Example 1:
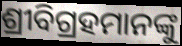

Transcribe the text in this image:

ଶ୍ରୀବିଗ୍ରହମାନଙ୍କୁ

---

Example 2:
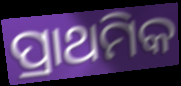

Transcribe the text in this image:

ପ୍ରାଥମିକ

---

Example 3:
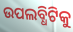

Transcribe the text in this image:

ଉପଲବ୍ଧିଟିକୁ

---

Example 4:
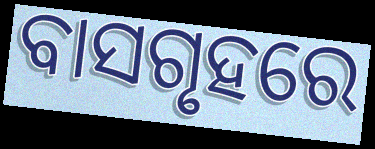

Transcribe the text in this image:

ବାସଗୃହରେ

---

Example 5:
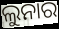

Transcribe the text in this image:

ଲୁନାର